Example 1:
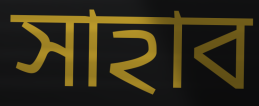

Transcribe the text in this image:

সাহাব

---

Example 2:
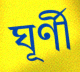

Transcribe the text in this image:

ঘূৰ্ণী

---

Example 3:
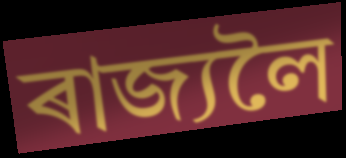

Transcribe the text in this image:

ৰাজ্যলৈ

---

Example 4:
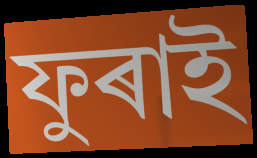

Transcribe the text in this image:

ফুৰাই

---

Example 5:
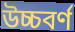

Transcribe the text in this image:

উচ্চবৰ্ণ